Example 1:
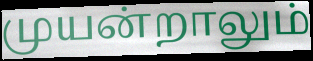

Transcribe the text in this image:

முயன்றாலும்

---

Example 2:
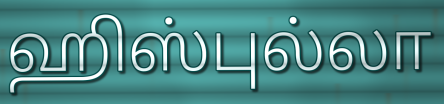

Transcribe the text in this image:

ஹிஸ்புல்லா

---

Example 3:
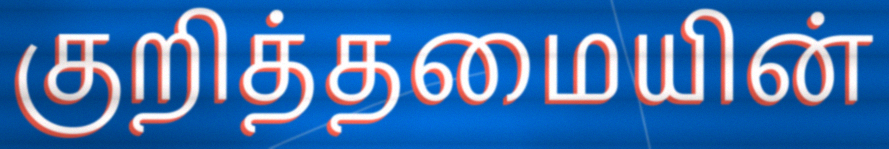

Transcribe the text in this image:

குறித்தமையின்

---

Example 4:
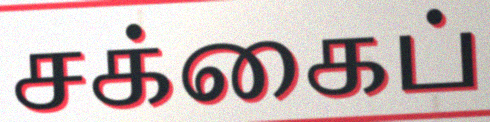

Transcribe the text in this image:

சக்கைப்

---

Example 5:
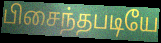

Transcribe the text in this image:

பிசைந்தபடியே